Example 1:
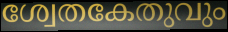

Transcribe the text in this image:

ശ്വേതകേതുവും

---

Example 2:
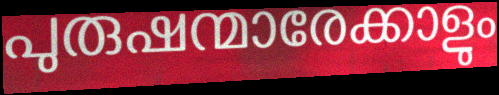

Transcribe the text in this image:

പുരുഷന്മാരേക്കാളും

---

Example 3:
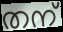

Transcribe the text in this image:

തന്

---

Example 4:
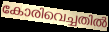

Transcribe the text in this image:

കോരിവെച്ചതിൽ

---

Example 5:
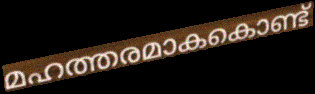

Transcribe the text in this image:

മഹത്തരമാകകൊണ്ട്